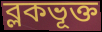
ব্লকভূক্ত